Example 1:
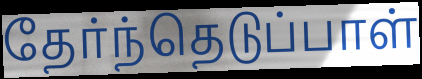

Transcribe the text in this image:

தேர்ந்தெடுப்பாள்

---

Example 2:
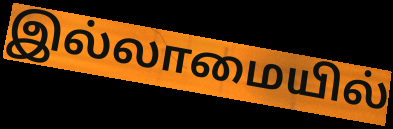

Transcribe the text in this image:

இல்லாமையில்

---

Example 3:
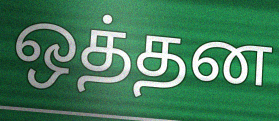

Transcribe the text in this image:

ஒத்தன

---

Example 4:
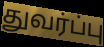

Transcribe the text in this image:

துவர்ப்பு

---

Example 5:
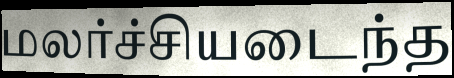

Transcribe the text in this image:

மலர்ச்சியடைந்த